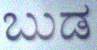
ಬುಡ